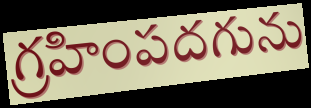
గ్రహింపదగును